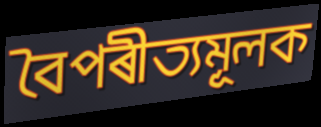
বৈপৰীত্যমূলক